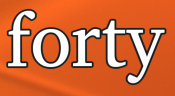
forty